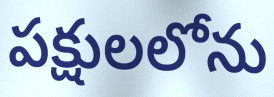
పక్షులలోను